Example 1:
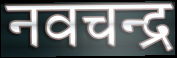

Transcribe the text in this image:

नवचन्द्र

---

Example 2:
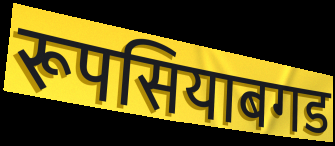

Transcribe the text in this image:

रूपसियाबगड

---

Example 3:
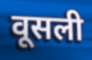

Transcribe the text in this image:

वूसली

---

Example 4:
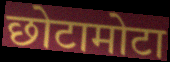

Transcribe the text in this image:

छोटामोटा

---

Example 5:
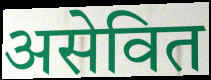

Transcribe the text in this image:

असेवित